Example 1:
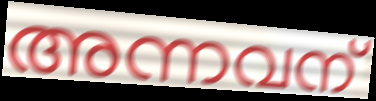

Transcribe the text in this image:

അന്നവന്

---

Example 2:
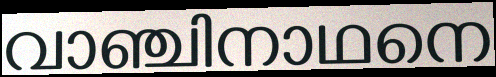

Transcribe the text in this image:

വാഞ്ചിനാഥനെ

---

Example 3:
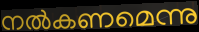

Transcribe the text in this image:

നൽകണമെന്നു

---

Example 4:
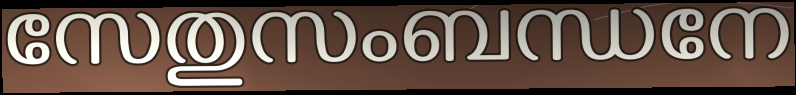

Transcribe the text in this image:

സേതുസംബന്ധനേ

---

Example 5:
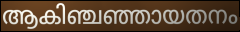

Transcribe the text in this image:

ആകിഞ്ചഞ്ഞായതനം